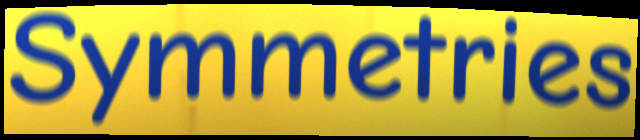
Symmetries